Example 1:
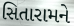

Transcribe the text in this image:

સિતારામને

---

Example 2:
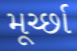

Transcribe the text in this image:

મૂર્ચ્છા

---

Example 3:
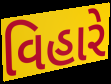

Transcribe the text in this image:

વિહારે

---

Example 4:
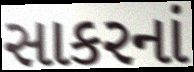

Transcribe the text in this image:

સાકરનાં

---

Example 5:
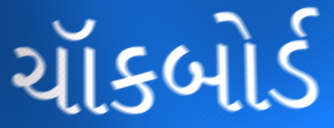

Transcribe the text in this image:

ચૉકબોર્ડ